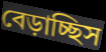
বেড়াচ্ছিস